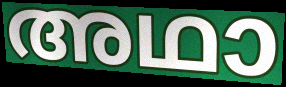
അഥാ